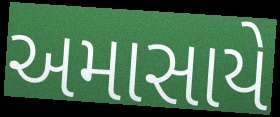
અમાસાયે